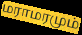
மராமரமும்